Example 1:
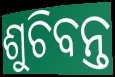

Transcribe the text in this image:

ଶୁଚିବନ୍ତ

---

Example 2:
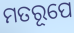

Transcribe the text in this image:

ମତରୂପେ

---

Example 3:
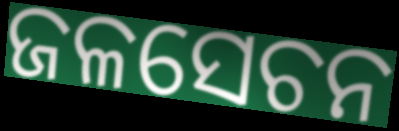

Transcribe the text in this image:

ଜଳସେଚନ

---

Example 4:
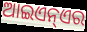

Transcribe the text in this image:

ଆଇଏନ୍ଏର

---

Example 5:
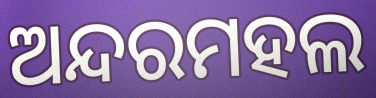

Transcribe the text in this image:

ଅନ୍ଦରମହଲ